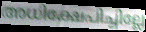
അധിക്ഷേപിച്ചില്ലേ